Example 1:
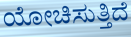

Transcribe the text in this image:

ಯೋಚಿಸುತ್ತಿದೆ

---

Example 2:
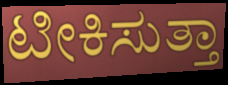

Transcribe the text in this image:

ಟೀಕಿಸುತ್ತಾ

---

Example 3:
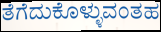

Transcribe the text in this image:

ತೆಗೆದುಕೊಳ್ಳುವಂತಹ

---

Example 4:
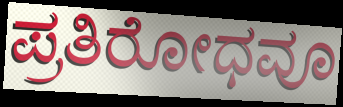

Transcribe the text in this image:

ಪ್ರತಿರೋಧವೂ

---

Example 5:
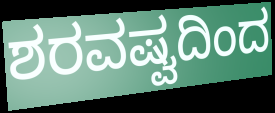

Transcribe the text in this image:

ಶರವಷ್ವದಿಂದ